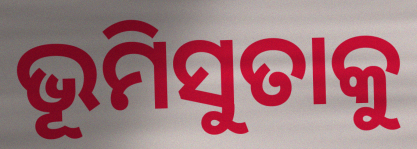
ଭୂମିସୁତାକୁ